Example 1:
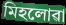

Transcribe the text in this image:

মিহলোৱা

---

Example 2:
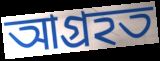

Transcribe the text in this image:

আগ্ৰহত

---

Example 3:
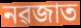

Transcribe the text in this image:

নৱজাত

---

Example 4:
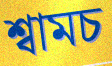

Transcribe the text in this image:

শ্বামচ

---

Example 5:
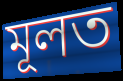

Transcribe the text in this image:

মূলত